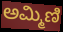
ಅಮ್ಮಿಣಿ